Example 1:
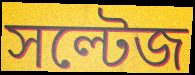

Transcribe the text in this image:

সল্টেজ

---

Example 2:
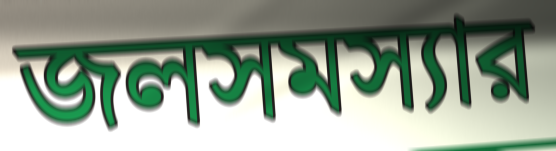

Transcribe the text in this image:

জলসমস্যার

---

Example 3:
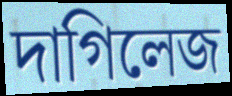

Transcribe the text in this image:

দাগিলেজ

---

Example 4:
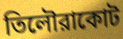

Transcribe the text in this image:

তিলৌরাকোট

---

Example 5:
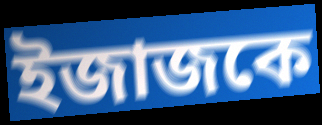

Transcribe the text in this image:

ইজাজকে